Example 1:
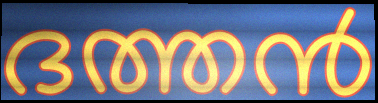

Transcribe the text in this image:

ദത്തൻ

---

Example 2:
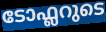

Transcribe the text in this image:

ടോഫ്ലറുടെ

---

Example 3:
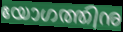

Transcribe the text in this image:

യോഗത്തിനു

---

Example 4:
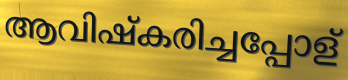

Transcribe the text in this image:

ആവിഷ്കരിച്ചപ്പോള്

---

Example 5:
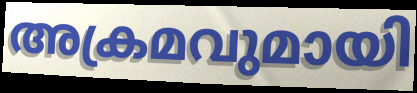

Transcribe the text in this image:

അക്രമവുമായി